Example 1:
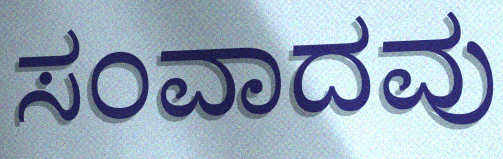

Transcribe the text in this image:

ಸಂವಾದವು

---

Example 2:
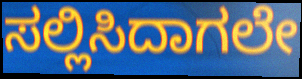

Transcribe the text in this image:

ಸಲ್ಲಿಸಿದಾಗಲೇ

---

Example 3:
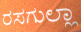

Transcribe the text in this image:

ರಸಗುಲ್ಲಾ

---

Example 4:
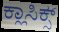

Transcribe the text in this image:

ಕ್ಲಾಸಿಕ್ಸ್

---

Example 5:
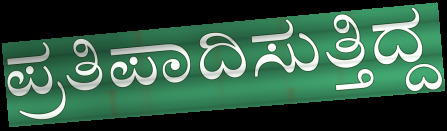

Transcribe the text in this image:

ಪ್ರತಿಪಾದಿಸುತ್ತಿದ್ದ